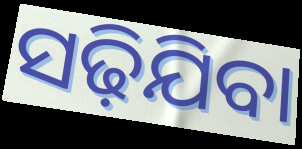
ସଢ଼ିଯିବା